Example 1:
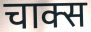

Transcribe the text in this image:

चाक्स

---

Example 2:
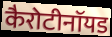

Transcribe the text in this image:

कैरोटीनॉयड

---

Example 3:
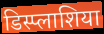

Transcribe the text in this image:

डिस्प्लाशिया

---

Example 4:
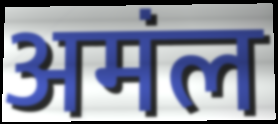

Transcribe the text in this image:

अमंल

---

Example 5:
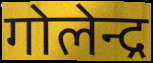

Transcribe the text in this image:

गोलेन्द्र